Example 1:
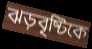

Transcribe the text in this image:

ঝড়বৃষ্টিকে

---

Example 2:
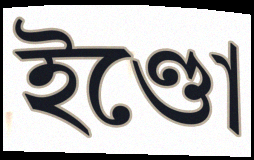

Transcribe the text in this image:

ইণ্ডো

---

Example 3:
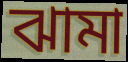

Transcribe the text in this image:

ঝামা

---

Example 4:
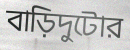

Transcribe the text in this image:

বাড়িদুটোর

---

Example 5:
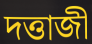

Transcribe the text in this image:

দত্তাজী